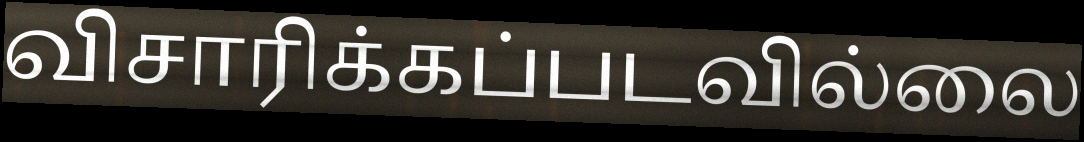
விசாரிக்கப்படவில்லை